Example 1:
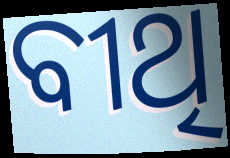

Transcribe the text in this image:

ବୀଥି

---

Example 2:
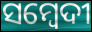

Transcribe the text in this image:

ସମ୍ବେଦୀ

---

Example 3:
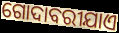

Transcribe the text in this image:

ଗୋଦାବରୀଯାଏ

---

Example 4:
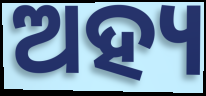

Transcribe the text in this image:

ଅହ୍ୟ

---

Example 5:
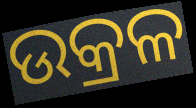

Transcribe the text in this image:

ଉକ୍ରଳ